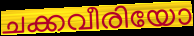
ചക്കവീരിയോ